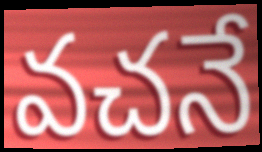
వచనే